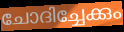
ചോദിച്ചേക്കും